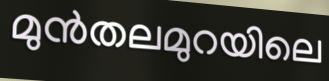
മുൻതലമുറയിലെ